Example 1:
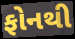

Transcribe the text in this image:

ફોનથી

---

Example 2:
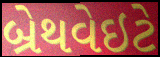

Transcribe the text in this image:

બ્રેથવેઇટે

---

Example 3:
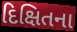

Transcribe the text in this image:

દિક્ષિતના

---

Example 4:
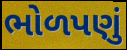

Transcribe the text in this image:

ભોળપણું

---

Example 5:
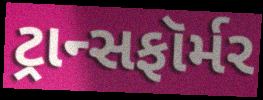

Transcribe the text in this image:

ટ્રાન્સફૉર્મર